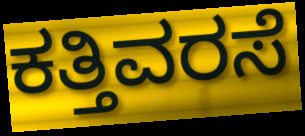
ಕತ್ತಿವರಸೆ